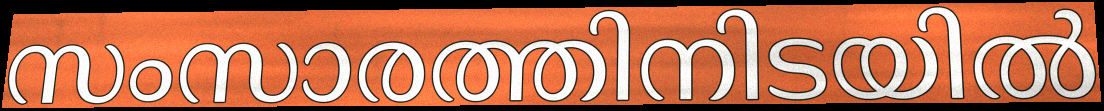
സംസാരത്തിനിടയിൽ